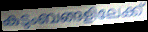
കുടുംബങ്ങളിലേക്ക്